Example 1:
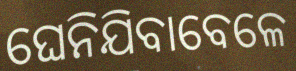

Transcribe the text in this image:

ଘେନିଯିବାବେଳେ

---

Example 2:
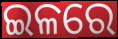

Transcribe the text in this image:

ଇଳରେ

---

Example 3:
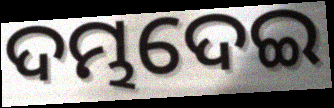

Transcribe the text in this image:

ଦମ୍ଭଦେଇ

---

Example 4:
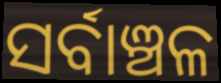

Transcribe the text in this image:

ସର୍ବାଞ୍ଚଳ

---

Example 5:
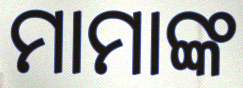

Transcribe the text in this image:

ମାମାଙ୍କ